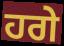
ਹਗੇ